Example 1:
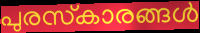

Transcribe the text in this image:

പുരസ്‌കാരങ്ങൾ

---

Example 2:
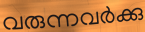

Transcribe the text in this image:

വരുന്നവർക്കു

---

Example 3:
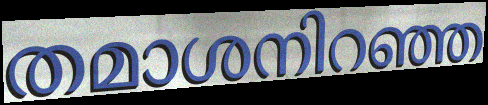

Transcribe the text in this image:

തമാശനിറഞ്ഞ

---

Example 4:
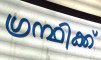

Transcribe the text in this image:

ഗ്രന്ഥിക്ക്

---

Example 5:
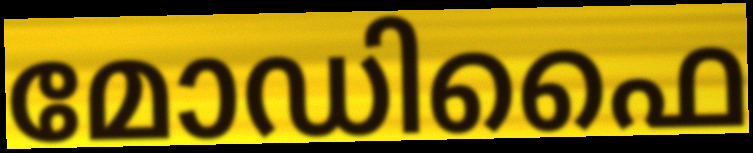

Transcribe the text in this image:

മോഡിഫൈ